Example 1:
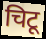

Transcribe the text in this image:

चिटू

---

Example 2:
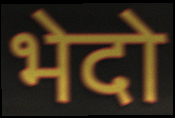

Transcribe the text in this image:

भेदो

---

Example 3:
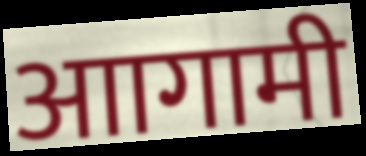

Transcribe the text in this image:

आागामी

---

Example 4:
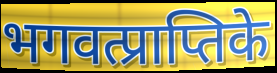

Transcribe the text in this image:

भगवत्प्राप्तिके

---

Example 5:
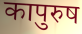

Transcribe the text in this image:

कापुरुष